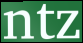
ntz